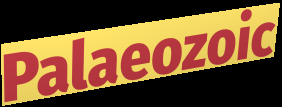
Palaeozoic